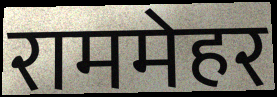
राममेहर